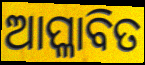
ଆପ୍ଳାବିତ